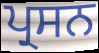
ਪ੍ਰਸਨ